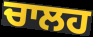
ਚਾਲਹ